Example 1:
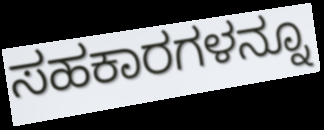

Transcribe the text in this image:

ಸಹಕಾರಗಳನ್ನೂ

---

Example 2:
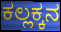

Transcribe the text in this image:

ಕಲ್ಲಕ್ಕನ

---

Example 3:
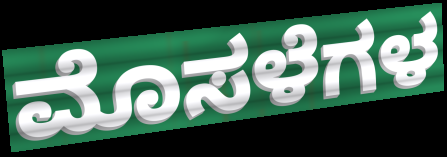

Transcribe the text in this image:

ಮೊಸಳೆಗಳ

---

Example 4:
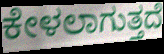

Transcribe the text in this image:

ಕೇಳಲಾಗುತ್ತದೆ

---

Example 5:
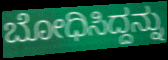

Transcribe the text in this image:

ಬೋಧಿಸಿದ್ದನ್ನು